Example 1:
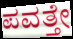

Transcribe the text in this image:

ಪವತ್ತೇ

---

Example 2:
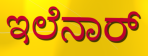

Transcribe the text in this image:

ಇಲೆನಾರ್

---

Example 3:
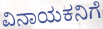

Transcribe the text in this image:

ವಿನಾಯಕನಿಗೆ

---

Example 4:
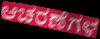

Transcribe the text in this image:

ಆಚರಣೆಗಳ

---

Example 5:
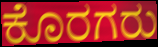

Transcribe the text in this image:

ಕೊರಗರು